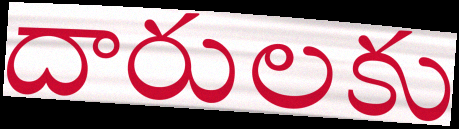
దారులకు